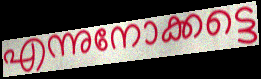
എന്നുനോക്കട്ടെ